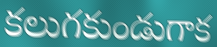
కలుగకుండుగాక